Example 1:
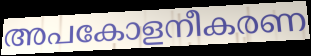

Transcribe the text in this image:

അപകോളനീകരണ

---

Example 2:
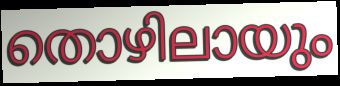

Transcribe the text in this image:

തൊഴിലായും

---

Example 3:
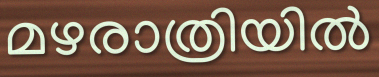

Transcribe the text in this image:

മഴരാത്രിയിൽ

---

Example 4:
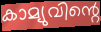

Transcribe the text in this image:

കാമ്യുവിന്റെ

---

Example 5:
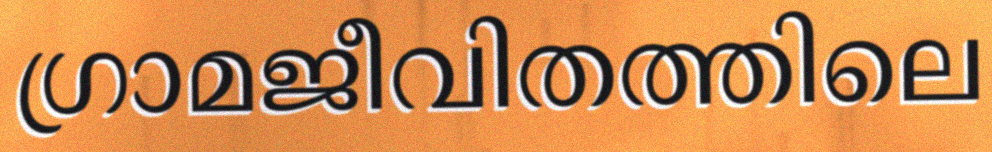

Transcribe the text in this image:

ഗ്രാമജീവിതത്തിലെ